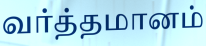
வர்த்தமானம்